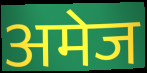
अमेज